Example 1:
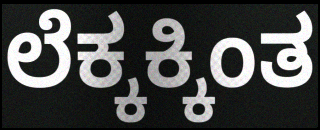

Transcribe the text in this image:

ಲೆಕ್ಕಕ್ಕಿಂತ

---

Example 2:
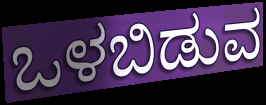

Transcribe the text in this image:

ಒಳಬಿಡುವ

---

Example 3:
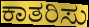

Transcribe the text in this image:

ಕಾತರಿಸು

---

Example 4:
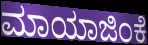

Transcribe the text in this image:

ಮಾಯಾಜಿಂಕೆ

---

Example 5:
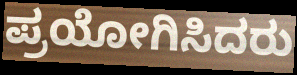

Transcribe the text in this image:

ಪ್ರಯೋಗಿಸಿದರು